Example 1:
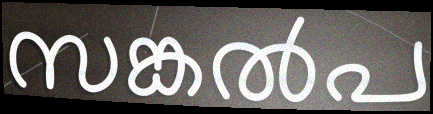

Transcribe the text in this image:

സങ്കൽപ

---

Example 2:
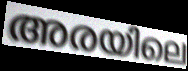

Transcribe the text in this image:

അരയിലെ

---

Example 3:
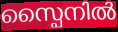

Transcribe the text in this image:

സ്പൈനിൽ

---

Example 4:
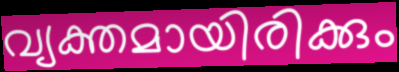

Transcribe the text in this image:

വ്യക്തമായിരിക്കും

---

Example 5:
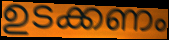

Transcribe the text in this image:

ഉടക്കണം